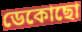
ডেকোছো